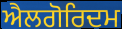
ਐਲਗੋਰਿਦਮ